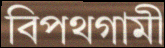
বিপথগামী